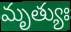
మృత్యుః